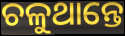
ଚଳୁଥାନ୍ତେ